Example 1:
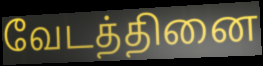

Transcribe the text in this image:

வேடத்தினை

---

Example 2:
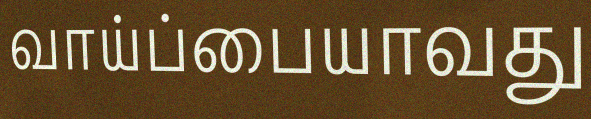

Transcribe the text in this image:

வாய்ப்பையாவது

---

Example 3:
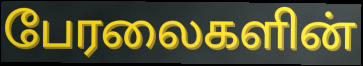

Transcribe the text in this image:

பேரலைகளின்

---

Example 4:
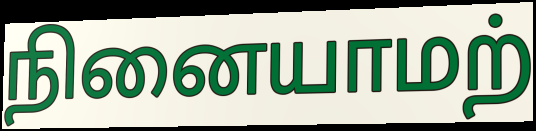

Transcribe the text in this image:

நினையாமற்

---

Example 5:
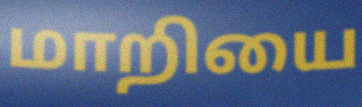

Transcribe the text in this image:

மாறியை